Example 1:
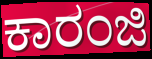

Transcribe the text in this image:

ಕಾರಂಜಿ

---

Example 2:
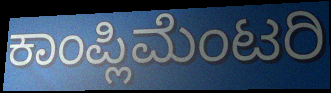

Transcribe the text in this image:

ಕಾಂಪ್ಲಿಮೆಂಟರಿ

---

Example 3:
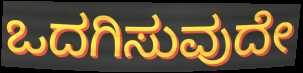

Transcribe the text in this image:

ಒದಗಿಸುವುದೇ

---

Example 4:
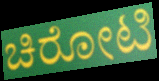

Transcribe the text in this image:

ಚಿರೋಟಿ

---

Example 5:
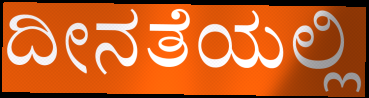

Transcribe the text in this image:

ದೀನತೆಯಲ್ಲಿ